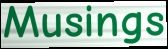
Musings